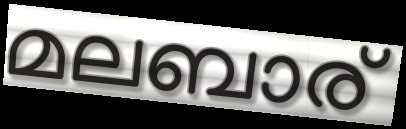
മലബാര്